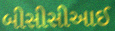
બીસીસીઆઈ